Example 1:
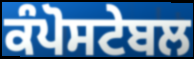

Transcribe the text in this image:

ਕੰਪੋਸਟੇਬਲ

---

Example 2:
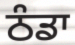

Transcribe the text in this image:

ਠੰਡਾ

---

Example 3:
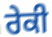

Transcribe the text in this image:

ਰੇਕੀ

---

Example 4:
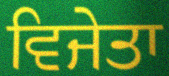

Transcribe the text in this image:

ਵਿਜੇਤਾ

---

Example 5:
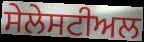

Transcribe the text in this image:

ਸੇਲੇਸਟੀਅਲ